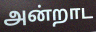
அன்றாட